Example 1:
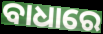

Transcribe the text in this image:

ବାଧାରେ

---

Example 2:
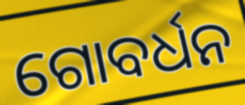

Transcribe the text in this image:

ଗୋବର୍ଧନ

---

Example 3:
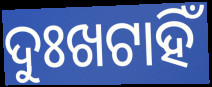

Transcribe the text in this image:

ଦୁଃଖଟାହିଁ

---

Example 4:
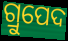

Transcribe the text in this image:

ଗ୍ରୁପେଦ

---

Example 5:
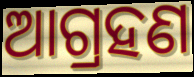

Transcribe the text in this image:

ଆଗ୍ରହଣ